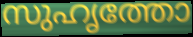
സുഹൃത്തോ